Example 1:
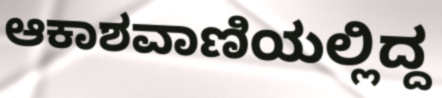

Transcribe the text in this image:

ಆಕಾಶವಾಣಿಯಲ್ಲಿದ್ದ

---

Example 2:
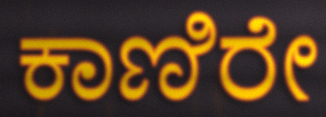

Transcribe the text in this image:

ಕಾಣಿರೇ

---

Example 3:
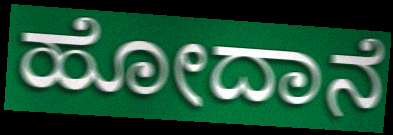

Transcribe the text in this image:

ಹೋದಾನೆ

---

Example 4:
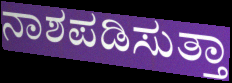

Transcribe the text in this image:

ನಾಶಪಡಿಸುತ್ತಾ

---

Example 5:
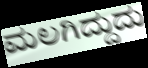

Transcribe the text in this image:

ಮಲಗಿದ್ದುದು